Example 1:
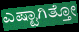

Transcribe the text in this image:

ಎಷ್ಟಾಗಿತ್ತೋ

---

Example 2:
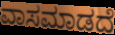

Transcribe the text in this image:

ವಾಸಮಾಡದೆ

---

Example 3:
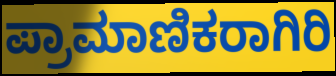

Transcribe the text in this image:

ಪ್ರಾಮಾಣಿಕರಾಗಿರಿ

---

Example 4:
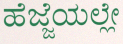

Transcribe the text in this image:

ಹೆಜ್ಜೆಯಲ್ಲೇ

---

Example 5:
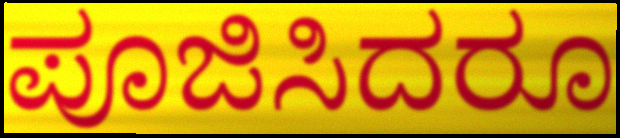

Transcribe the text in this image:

ಪೂಜಿಸಿದರೂ